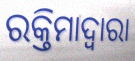
ରକ୍ତିମାଦ୍ୱାରା